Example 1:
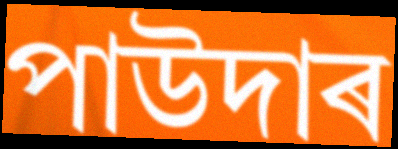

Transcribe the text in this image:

পাউদাৰ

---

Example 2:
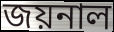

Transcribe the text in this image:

জয়নাল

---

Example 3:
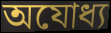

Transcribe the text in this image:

অযোধ্য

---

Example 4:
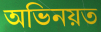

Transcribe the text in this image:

অভিনয়ত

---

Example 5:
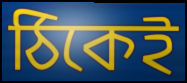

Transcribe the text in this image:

ঠিকেই